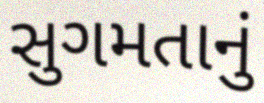
સુગમતાનું